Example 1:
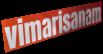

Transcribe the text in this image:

vimarisanam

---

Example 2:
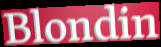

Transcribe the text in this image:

Blondin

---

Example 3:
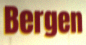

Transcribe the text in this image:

Bergen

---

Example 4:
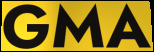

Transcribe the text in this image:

GMA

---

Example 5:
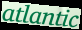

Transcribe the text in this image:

atlantic